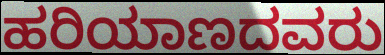
ಹರಿಯಾಣದವರು